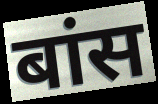
बांस